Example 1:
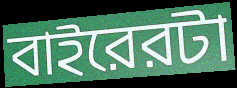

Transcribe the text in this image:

বাইরেরটা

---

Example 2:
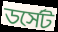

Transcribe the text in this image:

ডর্সেট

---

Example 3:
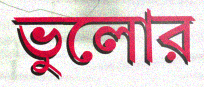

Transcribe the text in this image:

ভুলোর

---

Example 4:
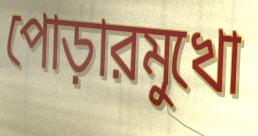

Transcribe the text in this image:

পোড়ারমুখো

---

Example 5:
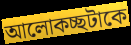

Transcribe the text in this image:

আলোকচ্ছটাকে